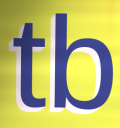
tb